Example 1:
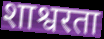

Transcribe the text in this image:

शाश्वरता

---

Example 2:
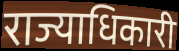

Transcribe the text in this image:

राज्याधिकारी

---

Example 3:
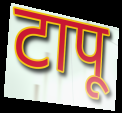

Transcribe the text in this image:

टापू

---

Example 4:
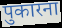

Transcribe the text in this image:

पुकारना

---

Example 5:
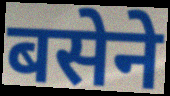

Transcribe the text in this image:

बसेने